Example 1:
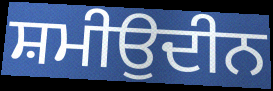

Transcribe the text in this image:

ਸ਼ਮੀਉਦੀਨ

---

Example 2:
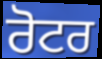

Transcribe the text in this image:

ਰੋਟਰ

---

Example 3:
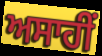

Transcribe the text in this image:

ਅਸਾਹੀਂ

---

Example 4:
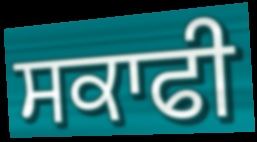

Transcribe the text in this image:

ਸਕਾਫੀ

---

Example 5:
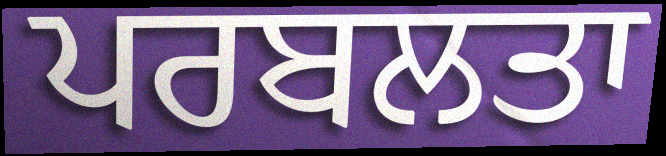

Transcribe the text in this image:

ਪਰਬਲਤਾ